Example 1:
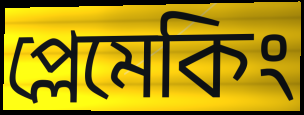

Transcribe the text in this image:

প্লেমেকিং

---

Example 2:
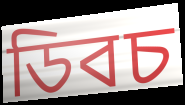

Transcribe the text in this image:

ডিবচ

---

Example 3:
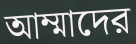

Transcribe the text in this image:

আম্মাদের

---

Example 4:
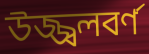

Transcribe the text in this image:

উজ্জ্বলবর্ণ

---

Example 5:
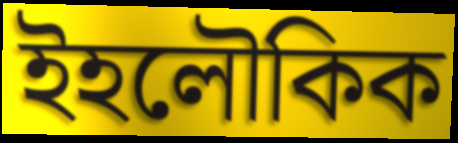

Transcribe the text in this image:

ইহলৌকিক